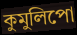
কুমুলিপো